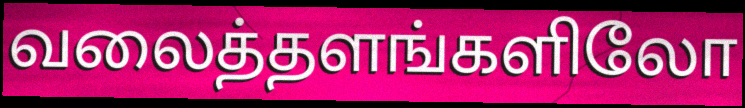
வலைத்தளங்களிலோ